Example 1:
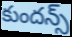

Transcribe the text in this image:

కుందన్స్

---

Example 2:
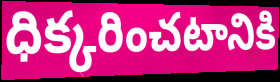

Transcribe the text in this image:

ధిక్కరించటానికి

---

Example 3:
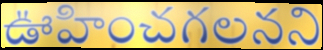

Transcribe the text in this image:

ఊహించగలనని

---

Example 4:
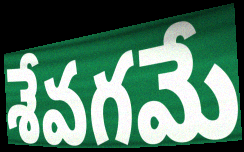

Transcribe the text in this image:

శేవగమే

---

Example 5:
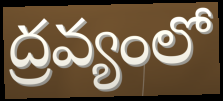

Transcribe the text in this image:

ద్రవ్యంలో